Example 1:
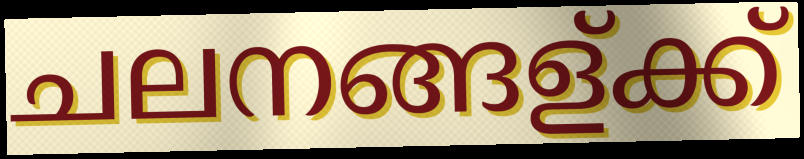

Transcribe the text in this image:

ചലനങ്ങള്ക്ക്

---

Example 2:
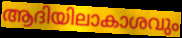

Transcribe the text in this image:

ആദിയിലാകാശവും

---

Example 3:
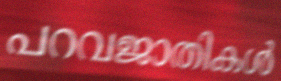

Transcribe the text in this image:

പറവജാതികൾ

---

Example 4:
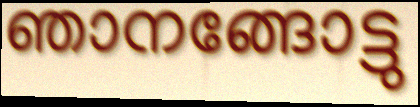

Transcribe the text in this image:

ഞാനങ്ങോട്ടു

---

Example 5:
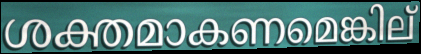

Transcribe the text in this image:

ശക്തമാകണമെങ്കില്